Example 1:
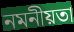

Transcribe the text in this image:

নমনীয়তা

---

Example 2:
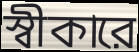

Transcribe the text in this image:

স্বীকারে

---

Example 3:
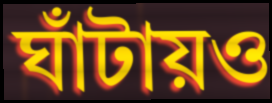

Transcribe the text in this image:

ঘাঁটায়ও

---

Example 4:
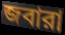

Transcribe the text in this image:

জবারা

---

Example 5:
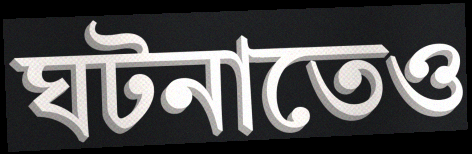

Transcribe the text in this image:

ঘটনাতেও